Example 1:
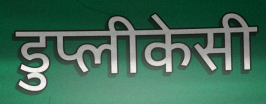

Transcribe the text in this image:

डुप्लीकेसी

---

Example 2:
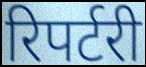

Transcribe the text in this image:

रिपर्टरी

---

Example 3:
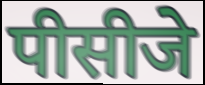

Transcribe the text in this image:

पीसीजे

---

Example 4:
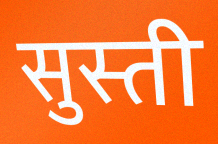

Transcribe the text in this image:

सुस्ती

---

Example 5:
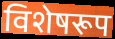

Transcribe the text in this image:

विशेषरूप